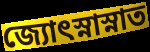
জ্যোৎস্নাস্নাত